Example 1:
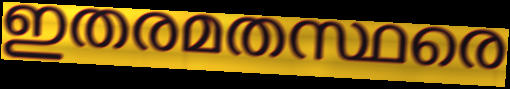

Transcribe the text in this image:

ഇതരമതസ്ഥരെ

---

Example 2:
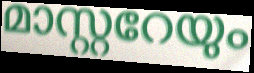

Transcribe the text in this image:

മാസ്റ്ററേയും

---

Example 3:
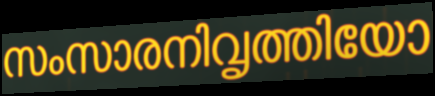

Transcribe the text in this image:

സംസാരനിവൃത്തിയോ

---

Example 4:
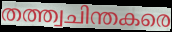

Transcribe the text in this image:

തത്ത്വചിന്തകരെ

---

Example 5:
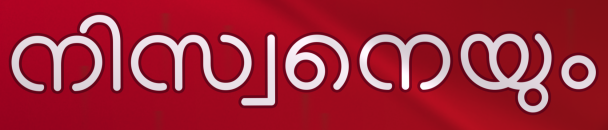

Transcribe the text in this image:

നിസ്വനെയും